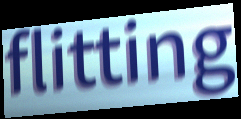
flitting